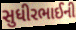
સુધીરભાઈની